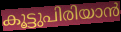
കൂട്ടുപിരിയാൻ